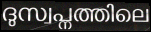
ദുസ്വപ്നത്തിലെ